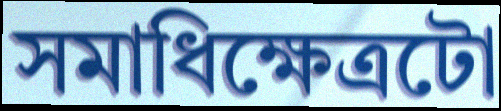
সমাধিক্ষেত্ৰটো